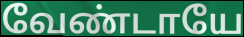
வேண்டாயே